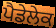
ਪੈਡੇਲੇਕ